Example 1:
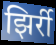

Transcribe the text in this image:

झिर्री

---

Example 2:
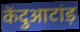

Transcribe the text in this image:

केंदुआटांड़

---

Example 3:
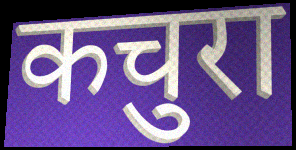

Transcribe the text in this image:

कचुरा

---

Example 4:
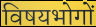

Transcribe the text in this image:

विषयभोगों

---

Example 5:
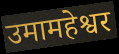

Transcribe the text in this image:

उमामहेश्वर